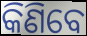
କିଣିବେ